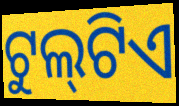
ଟୁଲ୍‍ଟିଏ